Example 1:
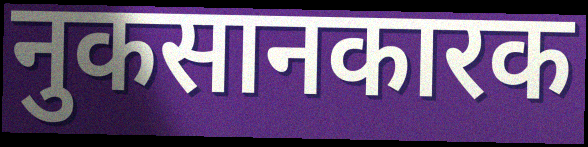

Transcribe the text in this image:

नुकसानकारक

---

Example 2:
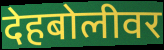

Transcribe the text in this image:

देहबोलीवर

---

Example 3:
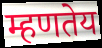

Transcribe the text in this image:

म्हणतेय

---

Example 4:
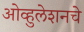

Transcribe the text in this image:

ओव्हुलेशनचे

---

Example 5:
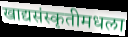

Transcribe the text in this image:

खाद्यसंस्कृतीमधला